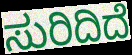
ಸುರಿದಿದೆ